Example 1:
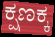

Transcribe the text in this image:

ಕ್ಷಣಕ್ಕ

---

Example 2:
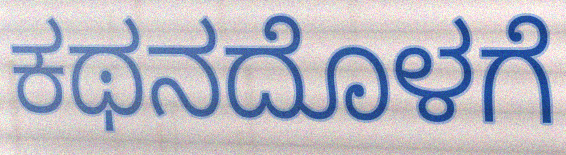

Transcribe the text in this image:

ಕಥನದೊಳಗೆ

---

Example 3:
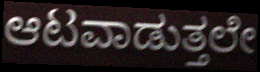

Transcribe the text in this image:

ಆಟವಾಡುತ್ತಲೇ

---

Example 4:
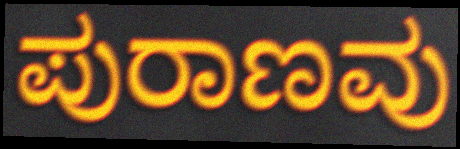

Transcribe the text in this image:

ಪುರಾಣವು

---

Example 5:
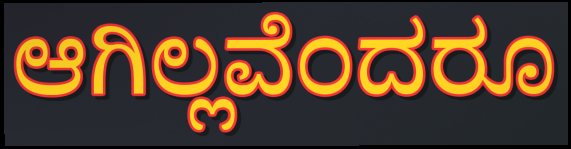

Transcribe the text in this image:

ಆಗಿಲ್ಲವೆಂದರೂ